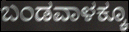
ಬಂಡವಾಳಕ್ಕೂ